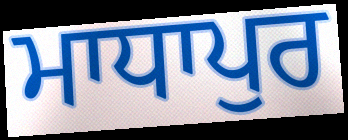
ਮਾਧਾਪੁਰ